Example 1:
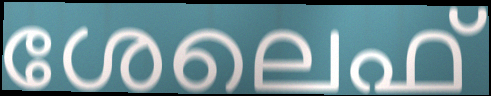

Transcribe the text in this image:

ശേലെഫ്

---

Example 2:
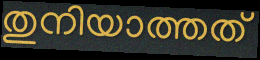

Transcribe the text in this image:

തുനിയാത്തത്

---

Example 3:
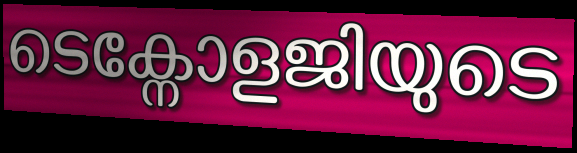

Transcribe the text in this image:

ടെക്നോളജിയുടെ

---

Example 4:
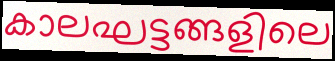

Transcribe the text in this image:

കാലഘട്ടങ്ങളിലെ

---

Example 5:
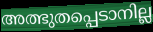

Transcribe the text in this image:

അത്ഭുതപ്പെടാനില്ല